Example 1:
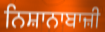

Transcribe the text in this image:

ਨਿਸ਼ਾਨਾਬਾਜ਼ੀ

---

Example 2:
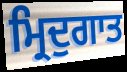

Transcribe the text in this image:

ਮ੍ਰਿਦੁਗਾਤ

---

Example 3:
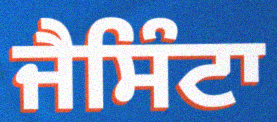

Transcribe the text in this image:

ਜੈਸਿੰਟਾ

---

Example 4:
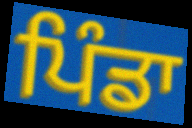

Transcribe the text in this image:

ਪਿੰਡਾ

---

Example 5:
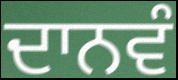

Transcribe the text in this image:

ਦਾਨਵੰ